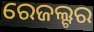
ରେଜଲ୍ଟର